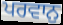
ਪਰਵਾਨੁ